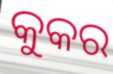
କୁକର